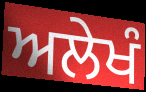
ਅਲੇਖੰ